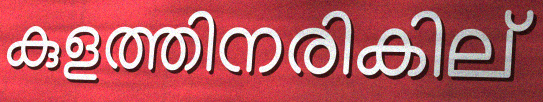
കുളത്തിനരികില്